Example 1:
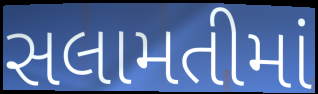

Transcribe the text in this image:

સલામતીમાં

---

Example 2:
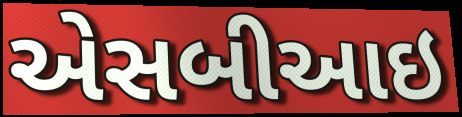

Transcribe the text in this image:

એસબીઆઇ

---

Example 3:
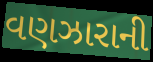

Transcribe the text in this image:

વણઝારાની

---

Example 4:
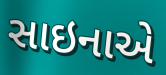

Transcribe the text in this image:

સાઇનાએ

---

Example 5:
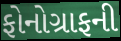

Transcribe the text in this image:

ફોનોગ્રાફની